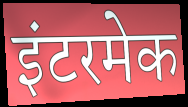
इंटरमेक